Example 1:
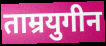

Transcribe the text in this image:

ताम्रयुगीन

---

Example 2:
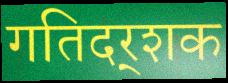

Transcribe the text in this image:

गतिदर्शक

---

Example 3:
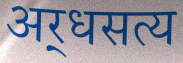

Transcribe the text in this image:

अर्धसत्य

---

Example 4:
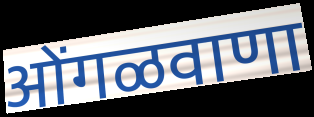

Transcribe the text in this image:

ओंगळवाणा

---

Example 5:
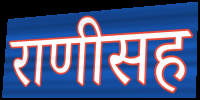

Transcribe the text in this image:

राणीसह